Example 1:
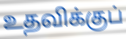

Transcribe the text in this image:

உதவிக்குப்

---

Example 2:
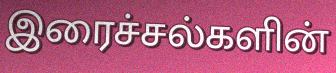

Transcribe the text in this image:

இரைச்சல்களின்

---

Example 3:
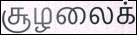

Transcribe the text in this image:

சூழலைக்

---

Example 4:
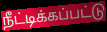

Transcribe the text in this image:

நீட்டிக்கப்பட்டு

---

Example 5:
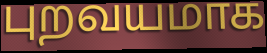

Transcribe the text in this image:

புறவயமாக